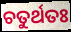
ଚତୁର୍ଥତଃ